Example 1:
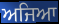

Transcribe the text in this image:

ਅਜਿਆ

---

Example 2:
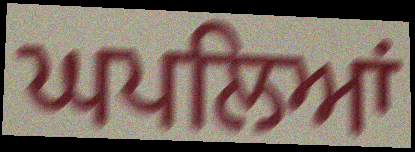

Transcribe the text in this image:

ਘਪਲਿਆਂ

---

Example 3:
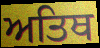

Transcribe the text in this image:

ਅਤਿਥ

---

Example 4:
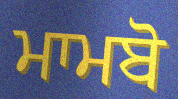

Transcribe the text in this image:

ਮਾਮਬੋ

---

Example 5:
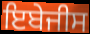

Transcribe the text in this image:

ਇਬੇਜੀਸ